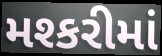
મશ્કરીમાં